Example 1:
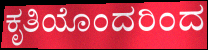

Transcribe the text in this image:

ಕೃತಿಯೊಂದರಿಂದ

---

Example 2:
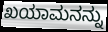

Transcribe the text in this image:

ಖಯಾಮನನ್ನು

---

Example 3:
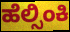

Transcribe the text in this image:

ಹೆಲ್ಸಿಂಕಿ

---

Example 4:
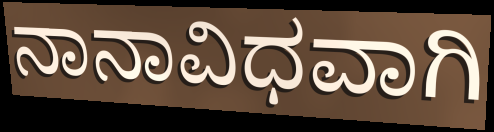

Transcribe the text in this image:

ನಾನಾವಿಧವಾಗಿ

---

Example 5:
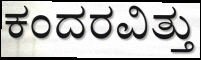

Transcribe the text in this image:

ಕಂದರವಿತ್ತು